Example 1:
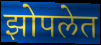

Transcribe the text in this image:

झोपलेत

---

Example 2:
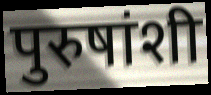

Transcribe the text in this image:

पुरुषांशी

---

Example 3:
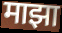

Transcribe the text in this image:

माझा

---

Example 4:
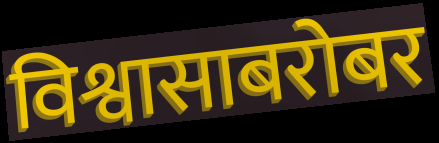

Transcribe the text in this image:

विश्वासाबरोबर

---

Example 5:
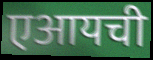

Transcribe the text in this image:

एआयची